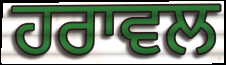
ਹਰਾਵਲ